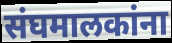
संघमालकांना